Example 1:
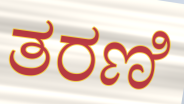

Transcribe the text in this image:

ತರಣಿ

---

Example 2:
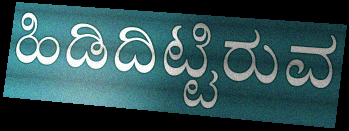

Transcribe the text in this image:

ಹಿಡಿದಿಟ್ಟಿರುವ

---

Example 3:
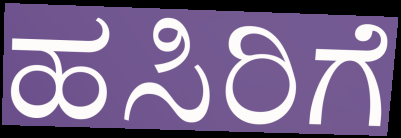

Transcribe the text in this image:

ಹಸಿರಿಗೆ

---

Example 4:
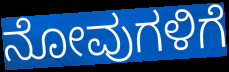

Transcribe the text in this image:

ನೋವುಗಳಿಗೆ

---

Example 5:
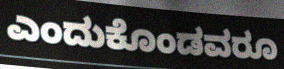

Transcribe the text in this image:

ಎಂದುಕೊಂಡವರೂ